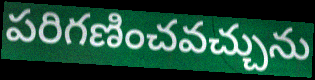
పరిగణించవచ్చును